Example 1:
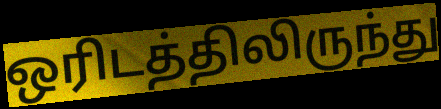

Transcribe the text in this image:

ஒரிடத்திலிருந்து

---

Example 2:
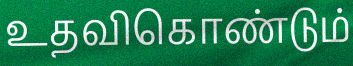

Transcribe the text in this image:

உதவிகொண்டும்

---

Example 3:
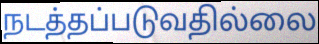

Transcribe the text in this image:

நடத்தப்படுவதில்லை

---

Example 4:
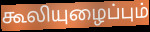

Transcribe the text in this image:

கூலியுழைப்பும்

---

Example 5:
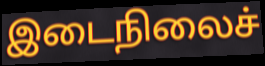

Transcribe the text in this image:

இடைநிலைச்